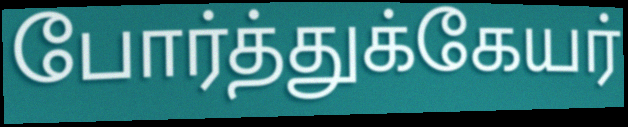
போர்த்துக்கேயர்